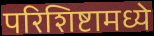
परिशिष्टामध्ये